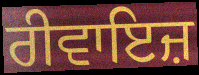
ਰੀਵਾਇਜ਼